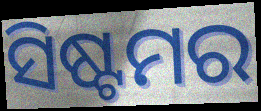
ସିଷ୍ଟମର